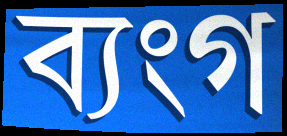
ব্যংগ